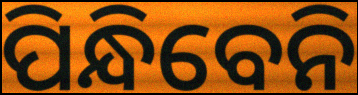
ପିନ୍ଧିବେନି